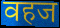
वहज